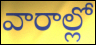
వారాల్లో